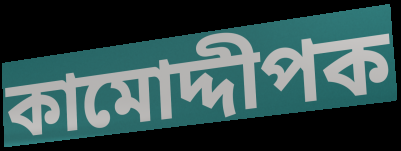
কামোদ্দীপক